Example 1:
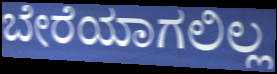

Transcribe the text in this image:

ಬೇರೆಯಾಗಲಿಲ್ಲ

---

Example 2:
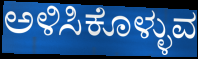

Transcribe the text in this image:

ಅಳಿಸಿಕೊಳ್ಳುವ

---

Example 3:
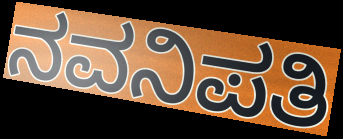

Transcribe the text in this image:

ನವನಿಪತಿ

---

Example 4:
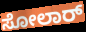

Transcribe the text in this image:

ಸೋಲಾರ್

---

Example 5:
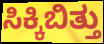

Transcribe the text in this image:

ಸಿಕ್ಕಿಬಿತ್ತು